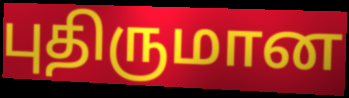
புதிருமான